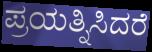
ಪ್ರಯತ್ನಿಸಿದರೆ